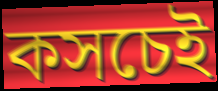
কসচেই